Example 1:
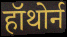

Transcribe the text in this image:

हॉथोर्न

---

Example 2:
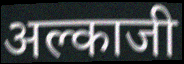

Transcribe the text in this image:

अल्काजी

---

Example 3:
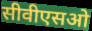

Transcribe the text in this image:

सीवीएसओ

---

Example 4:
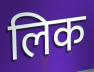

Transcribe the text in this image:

लिक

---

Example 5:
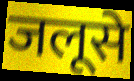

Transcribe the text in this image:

जलूसे